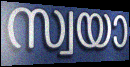
സ്വയാ